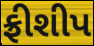
ફ્રીશીપ